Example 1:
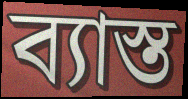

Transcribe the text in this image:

ব্যাস্ত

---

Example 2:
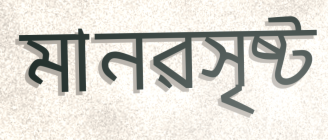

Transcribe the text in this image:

মানৱসৃষ্ট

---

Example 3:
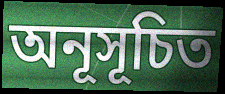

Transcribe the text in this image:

অনূসূচিত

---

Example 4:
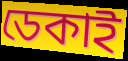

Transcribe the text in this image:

ডেকাই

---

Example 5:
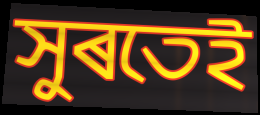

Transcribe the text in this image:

সুৰতেই